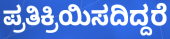
ಪ್ರತಿಕ್ರಿಯಿಸದಿದ್ದರೆ